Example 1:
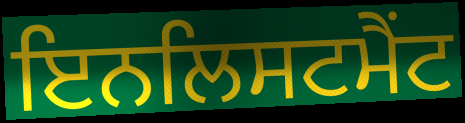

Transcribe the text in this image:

ਇਨਲਿਸਟਮੈਂਟ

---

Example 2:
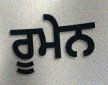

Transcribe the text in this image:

ਰੂਮੇਨ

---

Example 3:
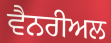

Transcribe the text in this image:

ਵੈਨਰੀਅਲ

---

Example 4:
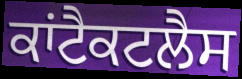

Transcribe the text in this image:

ਕਾਂਟੈਕਟਲੈਸ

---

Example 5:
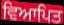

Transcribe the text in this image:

ਵਿਆਪਿਤ